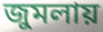
জুমলায়